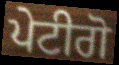
ਪੇਟੀਗੋ